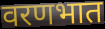
वरणभात